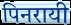
पिनरायी